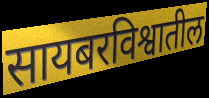
सायबरविश्वातील